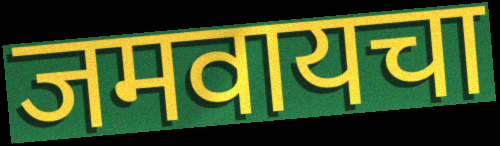
जमवायचा